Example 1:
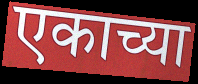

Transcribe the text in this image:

एकाच्या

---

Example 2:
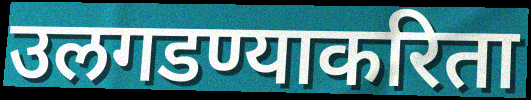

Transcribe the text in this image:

उलगडण्याकरिता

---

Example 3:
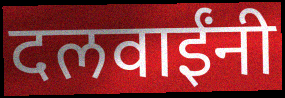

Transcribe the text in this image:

दलवाईंनी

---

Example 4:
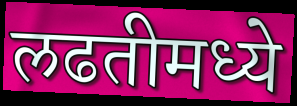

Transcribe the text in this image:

लढतीमध्ये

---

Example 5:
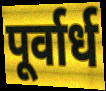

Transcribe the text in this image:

पूर्वार्ध